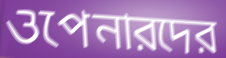
ওপেনারদের